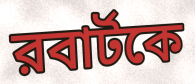
রবার্টকে